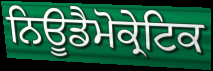
ਨਿਊਡੈਮੋਕ੍ਰੇਟਿਕ